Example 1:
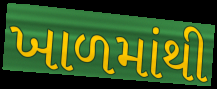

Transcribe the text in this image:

ખાળમાંથી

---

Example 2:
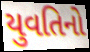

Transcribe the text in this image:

યુવતિનો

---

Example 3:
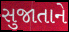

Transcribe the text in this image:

સુજાતાને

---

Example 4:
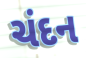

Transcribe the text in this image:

ચંદન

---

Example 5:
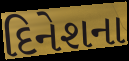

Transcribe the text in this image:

દિનેશના